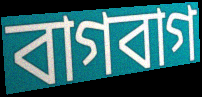
বাগবাগ